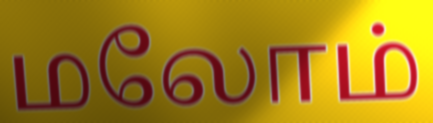
மலோம்